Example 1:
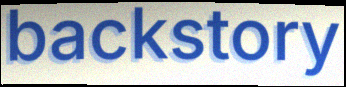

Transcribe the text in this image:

backstory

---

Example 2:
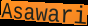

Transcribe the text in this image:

Asawari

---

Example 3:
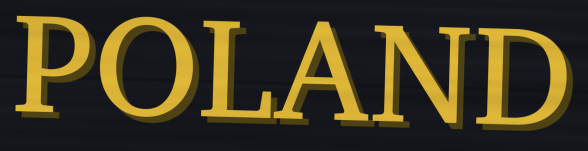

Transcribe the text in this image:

POLAND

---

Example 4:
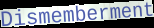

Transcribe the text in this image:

Dismemberment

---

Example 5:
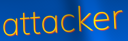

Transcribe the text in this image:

attacker